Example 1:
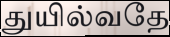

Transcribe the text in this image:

துயில்வதே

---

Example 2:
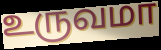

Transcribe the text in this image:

உருவமா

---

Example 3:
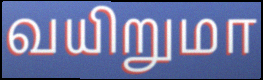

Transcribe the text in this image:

வயிறுமா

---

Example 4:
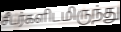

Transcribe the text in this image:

சீடர்களிடமிருந்து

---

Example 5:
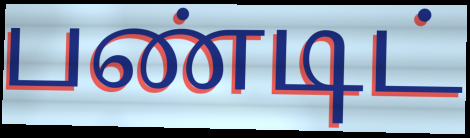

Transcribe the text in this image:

பண்டிட்